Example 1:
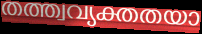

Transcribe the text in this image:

തത്ത്വവ്യക്തതയാ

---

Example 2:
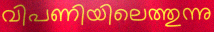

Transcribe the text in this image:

വിപണിയിലെത്തുന്നു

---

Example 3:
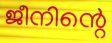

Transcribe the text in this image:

ജീനിന്റെ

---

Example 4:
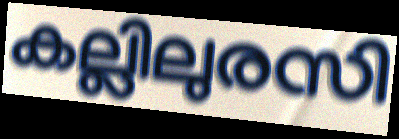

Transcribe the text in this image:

കല്ലിലുരസി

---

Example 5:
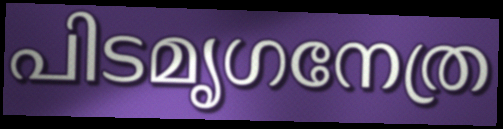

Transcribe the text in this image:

പിടമൃഗനേത്ര